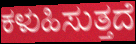
ಕಳುಹಿಸುತ್ತದೆ